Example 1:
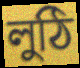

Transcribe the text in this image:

লুঠি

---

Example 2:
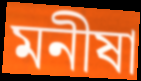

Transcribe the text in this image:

মনীষা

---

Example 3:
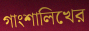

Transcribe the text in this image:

গাংশালিখের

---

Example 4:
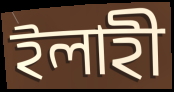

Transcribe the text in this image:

ইলাহী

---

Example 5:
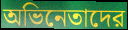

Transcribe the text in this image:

অভিনেতাদের